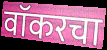
वॉकरचा